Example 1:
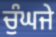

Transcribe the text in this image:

ਚੁੰਘਜੇ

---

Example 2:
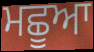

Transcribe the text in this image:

ਮਛੂਆ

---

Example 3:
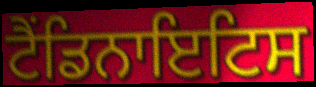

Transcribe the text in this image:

ਟੈਂਡਿਨਾਇਟਿਸ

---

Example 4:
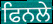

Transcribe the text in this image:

ਫਿਨਲੇ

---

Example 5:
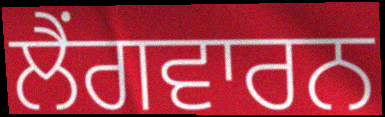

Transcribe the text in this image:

ਲੈਂਗਵਾਰਨ